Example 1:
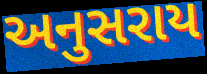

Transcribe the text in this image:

અનુસરાય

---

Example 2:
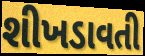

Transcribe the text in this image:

શીખડાવતી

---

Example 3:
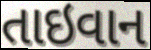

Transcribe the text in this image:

તાઇવાન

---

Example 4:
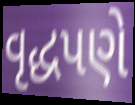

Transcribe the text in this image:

વૃદ્ધપણે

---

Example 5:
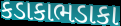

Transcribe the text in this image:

કડાકાભડાકા